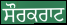
ਸੌਰਕਰਾਟ